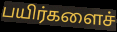
பயிர்களைச்